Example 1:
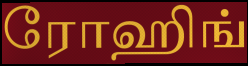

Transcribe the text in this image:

ரோஹிங்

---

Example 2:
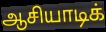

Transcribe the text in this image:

ஆசியாடிக்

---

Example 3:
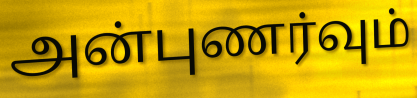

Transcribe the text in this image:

அன்புணர்வும்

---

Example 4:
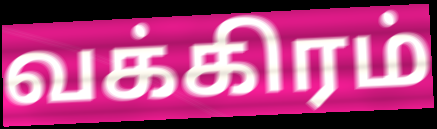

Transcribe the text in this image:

வக்கிரம்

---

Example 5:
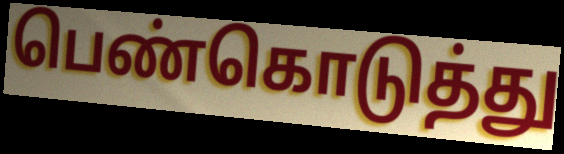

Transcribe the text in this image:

பெண்கொடுத்து